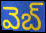
వెబ్